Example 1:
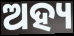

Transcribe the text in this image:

ଅହ୍ୟ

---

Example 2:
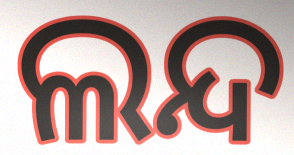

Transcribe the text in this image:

ଲନ୍ଦ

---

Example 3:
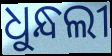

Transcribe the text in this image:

ଧୁନ୍ଧଲୀ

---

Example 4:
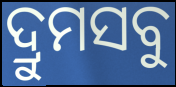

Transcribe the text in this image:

ଦ୍ରୁମସବୁ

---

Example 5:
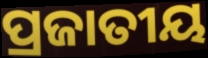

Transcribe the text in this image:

ପ୍ରଜାତୀୟ